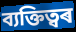
ব্যক্তিত্বৰ